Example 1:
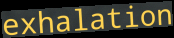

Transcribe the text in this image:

exhalation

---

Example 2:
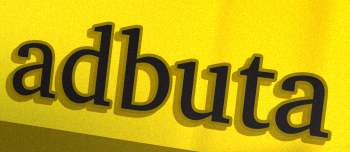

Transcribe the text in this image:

adbuta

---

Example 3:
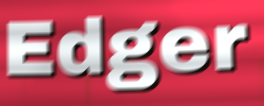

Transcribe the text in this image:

Edger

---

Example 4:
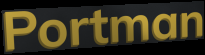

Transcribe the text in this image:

Portman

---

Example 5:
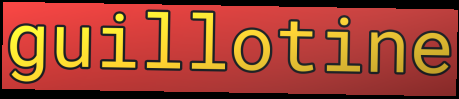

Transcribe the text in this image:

guillotine